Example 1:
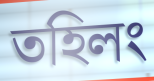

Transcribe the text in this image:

তহিলং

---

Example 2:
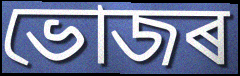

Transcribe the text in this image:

ভোজৰ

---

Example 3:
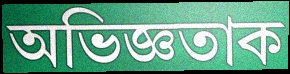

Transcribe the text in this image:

অভিজ্ঞতাক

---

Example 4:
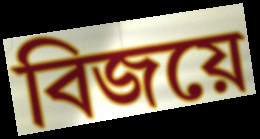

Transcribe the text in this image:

বিজয়ে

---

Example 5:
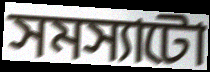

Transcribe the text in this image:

সমস্যাটো